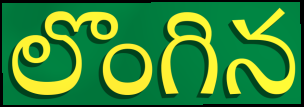
లొంగిన